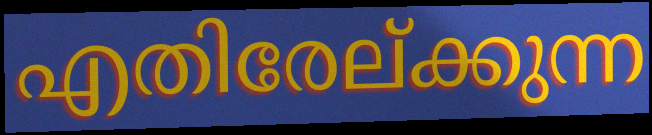
എതിരേല്ക്കുന്ന